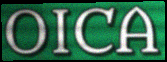
OICA